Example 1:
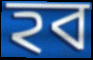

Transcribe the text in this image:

হব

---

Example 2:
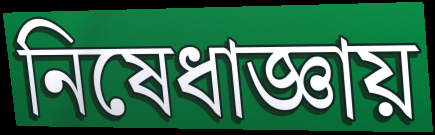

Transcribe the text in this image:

নিষেধাজ্ঞায়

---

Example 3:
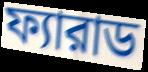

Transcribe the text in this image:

ফ্যারাড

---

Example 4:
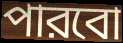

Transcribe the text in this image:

পারবো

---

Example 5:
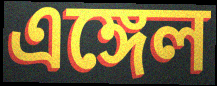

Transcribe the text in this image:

এঙ্গেল